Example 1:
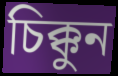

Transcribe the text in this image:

চিক্কুন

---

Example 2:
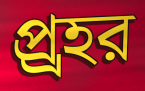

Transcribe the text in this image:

প্র্রহর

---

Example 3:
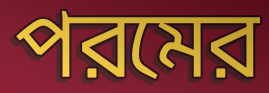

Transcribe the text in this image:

পরমের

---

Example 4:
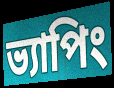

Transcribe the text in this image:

ভ্যাপিং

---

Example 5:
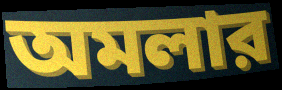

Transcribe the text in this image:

অমলার